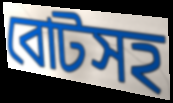
বোটসহ